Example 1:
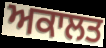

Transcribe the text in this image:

ਅਕਾਲਤ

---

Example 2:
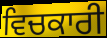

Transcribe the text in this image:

ਵਿਚਕਾਰੀ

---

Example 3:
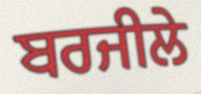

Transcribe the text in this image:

ਬਰਜੀਲੇ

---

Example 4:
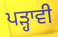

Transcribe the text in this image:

ਪੜ੍ਹਾਵੀ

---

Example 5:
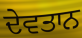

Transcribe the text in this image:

ਦੇਵਤਾਨ